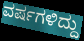
ವರ್ಷಗಳಿದ್ದು